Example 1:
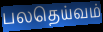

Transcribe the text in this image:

பலதெய்வம்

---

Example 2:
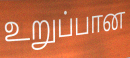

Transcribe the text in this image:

உறுப்பான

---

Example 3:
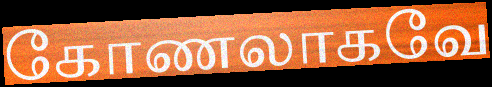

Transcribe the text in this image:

கோணலாகவே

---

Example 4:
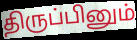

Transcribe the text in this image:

திருப்பினும்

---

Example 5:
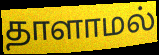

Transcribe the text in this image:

தாளாமல்